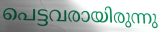
പെട്ടവരായിരുന്നു